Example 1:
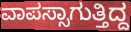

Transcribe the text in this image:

ವಾಪಸ್ಸಾಗುತ್ತಿದ್ದ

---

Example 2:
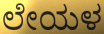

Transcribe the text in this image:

ಲೇಯಳ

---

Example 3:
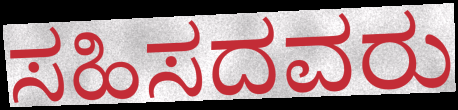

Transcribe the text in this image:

ಸಹಿಸದವರು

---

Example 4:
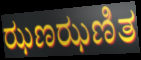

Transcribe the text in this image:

ಝಣಝಣಿತ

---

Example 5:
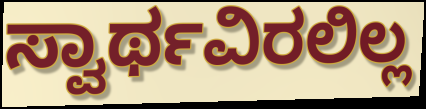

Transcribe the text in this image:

ಸ್ವಾರ್ಥವಿರಲಿಲ್ಲ